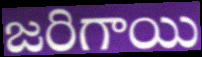
జరిగాయి